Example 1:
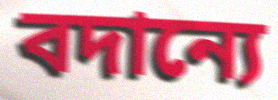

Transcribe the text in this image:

বদান্যে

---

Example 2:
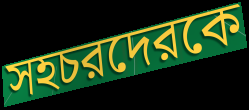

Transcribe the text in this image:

সহচরদেরকে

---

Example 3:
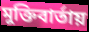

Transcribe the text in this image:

মুক্তিবার্তায়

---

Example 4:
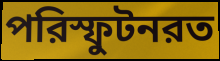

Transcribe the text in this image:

পরিস্ফুটনরত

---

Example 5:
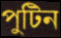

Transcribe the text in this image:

পুটিন